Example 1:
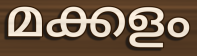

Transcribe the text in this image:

മക്കളം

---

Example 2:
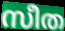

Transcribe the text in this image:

സീത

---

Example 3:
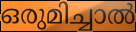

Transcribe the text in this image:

ഒരുമിച്ചാൽ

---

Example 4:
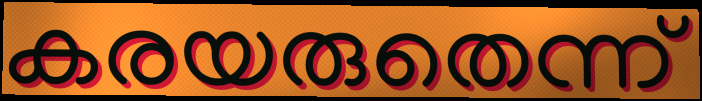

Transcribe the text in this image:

കരയരുതെന്ന്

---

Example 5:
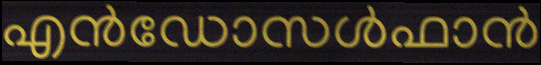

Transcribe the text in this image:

എൻഡോസൾഫാൻ